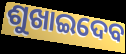
ଶୁଖାଇଦେବ